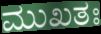
ಮುಖತಃ